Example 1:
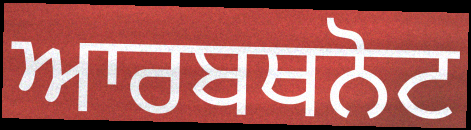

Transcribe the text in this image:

ਆਰਬਥਨੋਟ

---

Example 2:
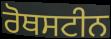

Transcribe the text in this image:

ਰੋਥਸਟੀਨ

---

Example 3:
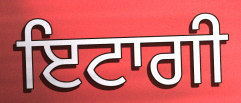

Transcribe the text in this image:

ਇਟਾਗੀ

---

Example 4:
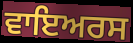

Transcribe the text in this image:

ਵਾਇਅਰਸ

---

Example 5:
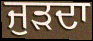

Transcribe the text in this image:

ਜੁੜਦਾ